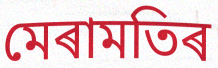
মেৰামতিৰ